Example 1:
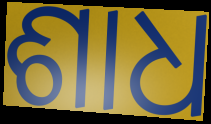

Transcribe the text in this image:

ଶାଧ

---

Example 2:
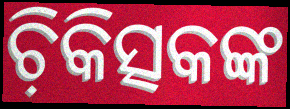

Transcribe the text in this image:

ଚ଼ିକିତ୍ସକଙ୍କ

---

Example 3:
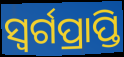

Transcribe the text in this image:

ସ୍ଵର୍ଗପ୍ରାପ୍ତି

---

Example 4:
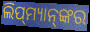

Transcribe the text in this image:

ଲିପ୍‌ମ୍ୟାନ୍‌ଙ୍କର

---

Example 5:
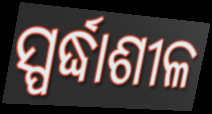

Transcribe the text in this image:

ସ୍ପର୍ଦ୍ଧାଶୀଳ